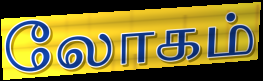
லோகம்